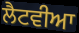
ਲੈਟਵੀਆ